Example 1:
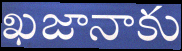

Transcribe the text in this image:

ఖజానాకు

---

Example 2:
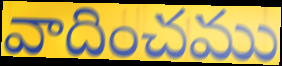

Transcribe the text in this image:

వాదించము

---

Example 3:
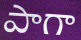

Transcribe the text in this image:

పాగా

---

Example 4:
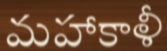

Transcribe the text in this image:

మహాకాళీ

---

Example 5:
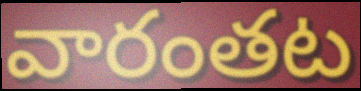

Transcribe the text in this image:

వారంతట